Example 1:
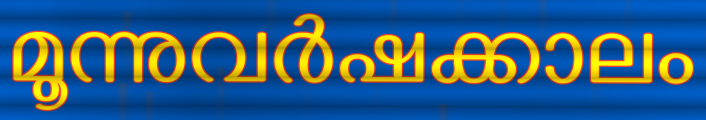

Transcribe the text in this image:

മൂന്നുവർഷക്കാലം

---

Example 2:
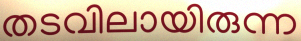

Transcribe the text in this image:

തടവിലായിരുന്ന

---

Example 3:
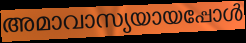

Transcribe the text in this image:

അമാവാസ്യയായപ്പോൾ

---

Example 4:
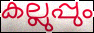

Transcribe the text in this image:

കല്ലുപ്പും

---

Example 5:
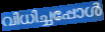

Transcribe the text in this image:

വിധിച്ചപ്പോൾ